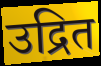
उद्रित